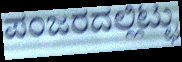
ಪಂಜರದಲ್ಲಿಟ್ಟು